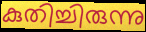
കുതിച്ചിരുന്നു